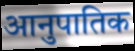
आनुपातिक